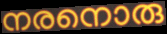
നരനൊരു